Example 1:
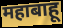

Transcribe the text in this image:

महाबाहू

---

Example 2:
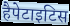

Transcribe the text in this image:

हैपेटाइटिस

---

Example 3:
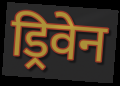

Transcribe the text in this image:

ड्रिवेन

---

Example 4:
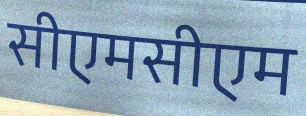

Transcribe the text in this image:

सीएमसीएम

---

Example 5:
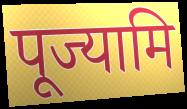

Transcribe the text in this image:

पूज्यामि